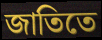
জাতিতে